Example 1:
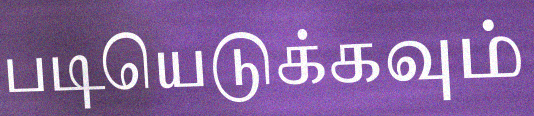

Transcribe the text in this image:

படியெடுக்கவும்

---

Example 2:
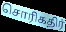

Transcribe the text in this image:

சொரிகதிர்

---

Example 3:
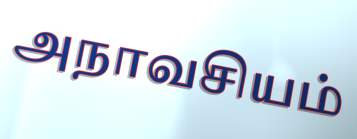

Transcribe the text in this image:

அநாவசியம்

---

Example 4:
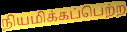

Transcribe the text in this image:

நியமிக்கப்பெற்ற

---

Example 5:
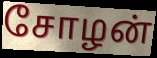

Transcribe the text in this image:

சோழன்